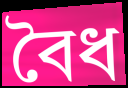
বৈধ